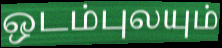
ஒடம்புலயும்